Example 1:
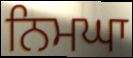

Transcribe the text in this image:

ਨਿਮਘਾ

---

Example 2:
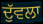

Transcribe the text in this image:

ਦੁੱਵਲਾ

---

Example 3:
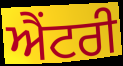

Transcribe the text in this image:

ਐਂਟਰੀ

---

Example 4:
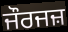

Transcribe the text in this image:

ਜੌਰਜਜ਼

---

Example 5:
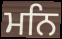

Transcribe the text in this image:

ਮਨਿ